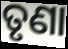
ତୃଣା